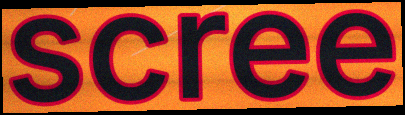
scree